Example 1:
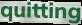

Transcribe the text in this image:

quitting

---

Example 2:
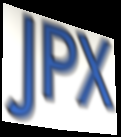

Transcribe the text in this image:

JPX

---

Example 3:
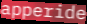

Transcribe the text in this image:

apperide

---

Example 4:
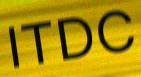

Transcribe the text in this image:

ITDC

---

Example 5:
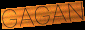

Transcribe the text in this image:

GAGAN